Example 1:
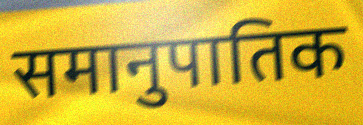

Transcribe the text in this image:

समानुपातिक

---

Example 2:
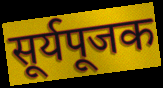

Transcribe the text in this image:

सूर्यपूजक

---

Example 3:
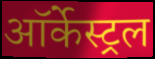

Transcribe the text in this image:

ऑर्केस्ट्रल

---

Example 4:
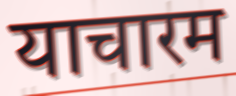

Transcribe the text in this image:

याचारम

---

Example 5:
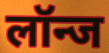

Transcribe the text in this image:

लॉन्ज